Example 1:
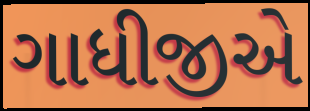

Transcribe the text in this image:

ગાધીજીએ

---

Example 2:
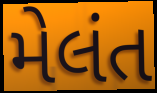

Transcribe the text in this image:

મેલંત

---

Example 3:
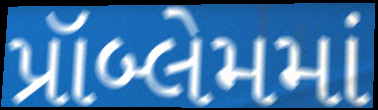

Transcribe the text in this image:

પ્રૉબ્લેમમાં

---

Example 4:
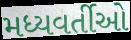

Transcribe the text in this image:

મધ્યવર્તીઓ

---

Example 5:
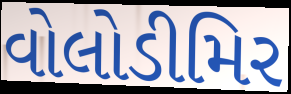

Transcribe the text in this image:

વોલોડીમિર